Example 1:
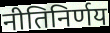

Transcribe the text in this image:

नीतिनिर्णय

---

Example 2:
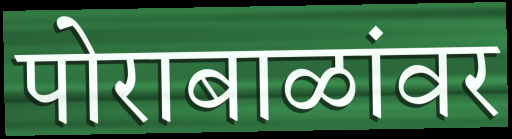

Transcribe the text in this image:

पोराबाळांवर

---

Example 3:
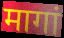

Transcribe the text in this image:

मागां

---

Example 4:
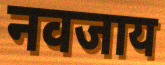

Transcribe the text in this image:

नवजाय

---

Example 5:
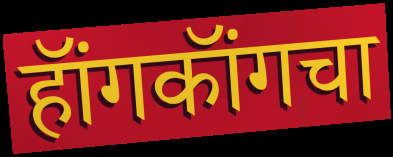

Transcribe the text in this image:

हॉंगकॉंगचा